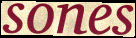
sones